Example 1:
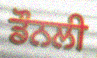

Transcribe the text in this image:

ਡੌਨਲੀ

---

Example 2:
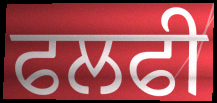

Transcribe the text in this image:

ਫਲਫੀ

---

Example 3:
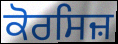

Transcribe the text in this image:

ਕੋਰਸਿਜ਼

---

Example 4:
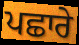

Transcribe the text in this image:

ਪਛਾਰੇ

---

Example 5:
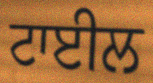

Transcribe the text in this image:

ਟਾਈਲ